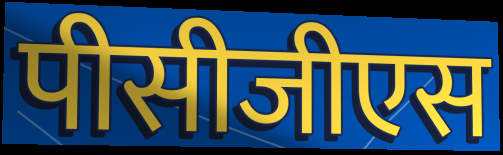
पीसीजीएस